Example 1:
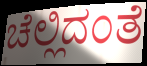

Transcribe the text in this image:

ಚೆಲ್ಲಿದಂತೆ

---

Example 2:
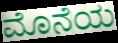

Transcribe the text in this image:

ಮೊನೆಯ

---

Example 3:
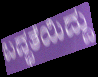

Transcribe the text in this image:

ಬದ್ಧತೆಯಿದ್ದು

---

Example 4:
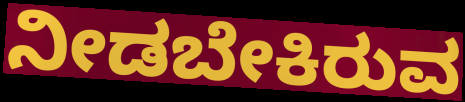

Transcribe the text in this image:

ನೀಡಬೇಕಿರುವ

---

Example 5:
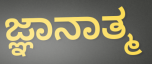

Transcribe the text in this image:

ಜ್ಞಾನಾತ್ಮ